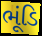
ભૂંડિ